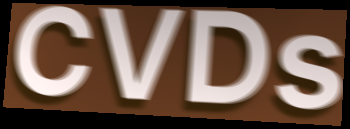
CVDs